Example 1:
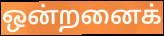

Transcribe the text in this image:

ஒன்றனைக்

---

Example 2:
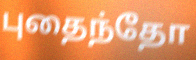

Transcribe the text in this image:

புதைந்தோ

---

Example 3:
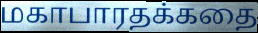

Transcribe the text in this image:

மகாபாரதக்கதை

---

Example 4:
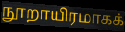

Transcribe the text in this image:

நூறாயிரமாகக்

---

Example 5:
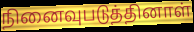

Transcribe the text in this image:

நினைவுபடுத்தினாள்